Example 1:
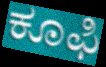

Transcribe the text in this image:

ಕೂಫಿ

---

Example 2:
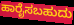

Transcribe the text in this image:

ಹಾರೈಸಬಹುದು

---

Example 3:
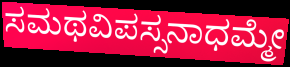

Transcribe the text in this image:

ಸಮಥವಿಪಸ್ಸನಾಧಮ್ಮೇ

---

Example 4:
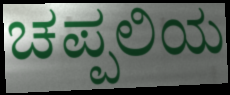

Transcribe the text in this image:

ಚಪ್ಪಲಿಯ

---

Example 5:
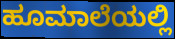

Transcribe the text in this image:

ಹೂಮಾಲೆಯಲ್ಲಿ